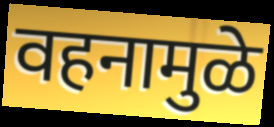
वहनामुळे